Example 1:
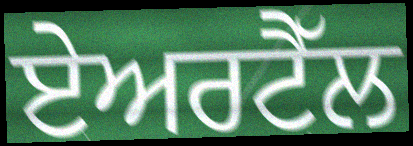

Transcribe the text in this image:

ਏਅਰਟੈੱਲ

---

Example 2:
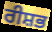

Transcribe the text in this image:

ਰੀਸ਼ਭ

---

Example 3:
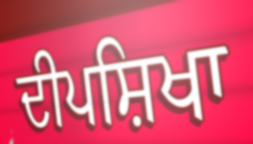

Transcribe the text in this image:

ਦੀਪਸ਼ਿਖਾ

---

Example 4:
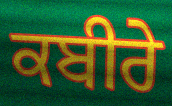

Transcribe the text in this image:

ਕਬੀਰੇ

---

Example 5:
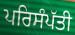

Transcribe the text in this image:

ਪਰਿਸੰਪੱਤੀ